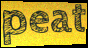
peat